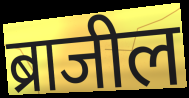
ब्राजील